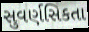
સુવર્ણસિકતા